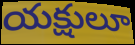
యక్షులూ